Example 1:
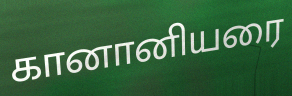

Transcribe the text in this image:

கானானியரை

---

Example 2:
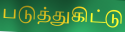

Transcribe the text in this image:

படுத்துகிட்டு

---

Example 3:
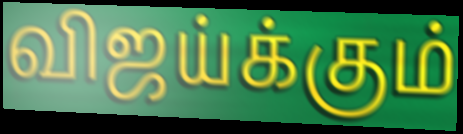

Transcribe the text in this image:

விஜய்க்கும்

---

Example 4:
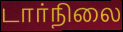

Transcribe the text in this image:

டார்நிலை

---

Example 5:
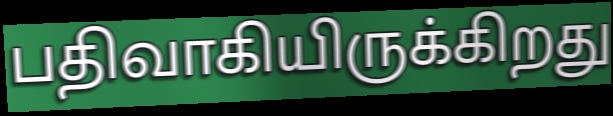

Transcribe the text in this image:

பதிவாகியிருக்கிறது